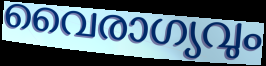
വൈരാഗ്യവും